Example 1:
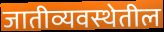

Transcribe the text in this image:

जातीव्यवस्थेतील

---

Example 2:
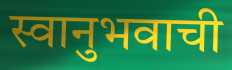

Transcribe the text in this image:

स्वानुभवाची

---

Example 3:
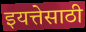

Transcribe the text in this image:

इयत्तेसाठी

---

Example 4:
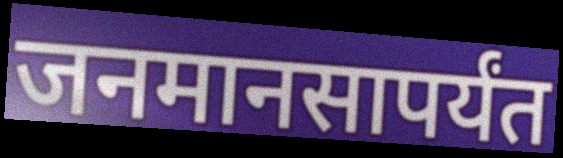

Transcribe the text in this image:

जनमानसापर्यंत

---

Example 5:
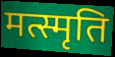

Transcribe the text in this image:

मत्स्मृति